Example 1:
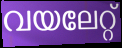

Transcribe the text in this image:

വയലേറ്റ്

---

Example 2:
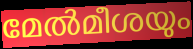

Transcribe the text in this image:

മേൽമീശയും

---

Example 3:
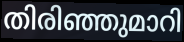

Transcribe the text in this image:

തിരിഞ്ഞുമാറി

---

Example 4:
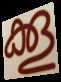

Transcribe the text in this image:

ക്കൂ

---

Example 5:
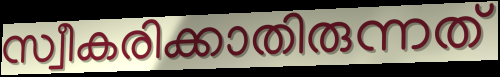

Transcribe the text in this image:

സ്വീകരിക്കാതിരുന്നത്